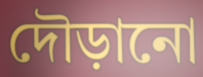
দৌড়ানো